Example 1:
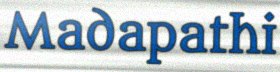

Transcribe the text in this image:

Madapathi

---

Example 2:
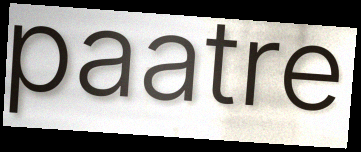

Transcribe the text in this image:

paatre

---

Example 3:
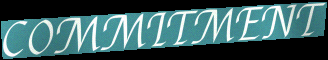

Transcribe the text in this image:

COMMITMENT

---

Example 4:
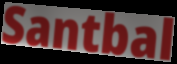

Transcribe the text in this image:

Santbal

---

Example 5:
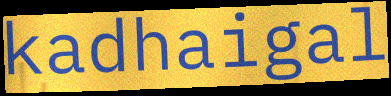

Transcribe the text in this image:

kadhaigal